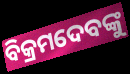
ବିକ୍ରମଦେବଙ୍କୁ